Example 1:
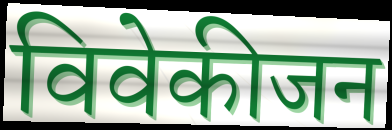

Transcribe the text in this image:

विवेकीजन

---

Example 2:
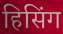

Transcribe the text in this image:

हिसिंग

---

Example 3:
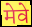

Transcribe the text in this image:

मेवे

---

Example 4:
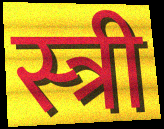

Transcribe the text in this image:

स्‍त्री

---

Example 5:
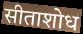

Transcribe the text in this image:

सीताशोध